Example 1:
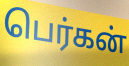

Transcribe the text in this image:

பெர்கன்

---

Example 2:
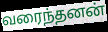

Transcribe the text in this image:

வரைந்தனன்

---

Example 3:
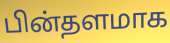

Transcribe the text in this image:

பின்தளமாக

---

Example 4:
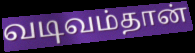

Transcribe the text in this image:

வடிவம்தான்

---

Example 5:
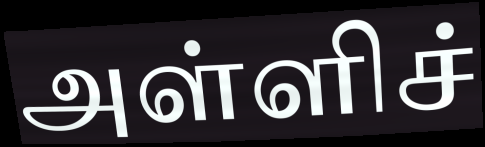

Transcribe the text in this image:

அள்ளிச்